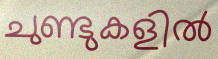
ചുണ്ടുകളിൽ